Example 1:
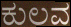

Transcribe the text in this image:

ಕುಲವ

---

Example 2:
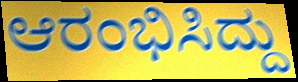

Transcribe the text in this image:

ಆರಂಭಿಸಿದ್ದು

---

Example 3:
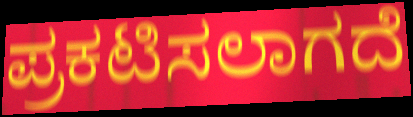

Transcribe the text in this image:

ಪ್ರಕಟಿಸಲಾಗದೆ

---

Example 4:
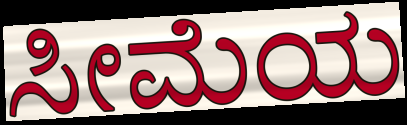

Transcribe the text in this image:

ಸೀಮೆಯ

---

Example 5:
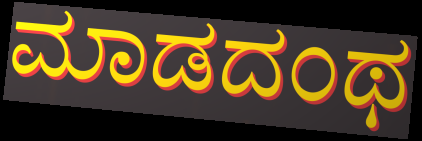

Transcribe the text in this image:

ಮಾಡದಂಥ